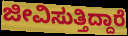
ಜೀವಿಸುತ್ತಿದ್ದಾರೆ